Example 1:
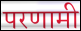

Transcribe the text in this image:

परणामी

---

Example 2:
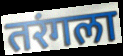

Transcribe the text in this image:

तरंगला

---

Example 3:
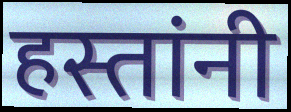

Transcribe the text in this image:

हस्तांनी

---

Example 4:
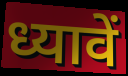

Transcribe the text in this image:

ध्यावें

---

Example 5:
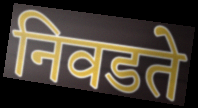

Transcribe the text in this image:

निवडते